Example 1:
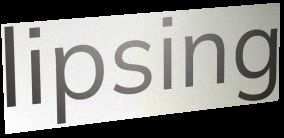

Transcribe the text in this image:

lipsing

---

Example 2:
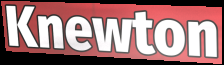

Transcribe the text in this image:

Knewton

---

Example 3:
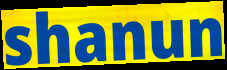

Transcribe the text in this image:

shanun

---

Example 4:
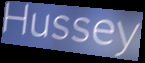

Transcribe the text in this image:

Hussey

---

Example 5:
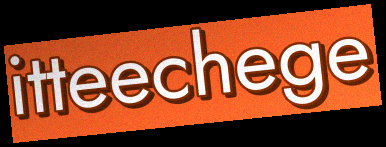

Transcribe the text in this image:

itteechege